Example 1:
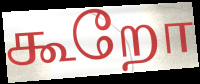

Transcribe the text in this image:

கூறோ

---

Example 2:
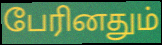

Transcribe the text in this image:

பேரினதும்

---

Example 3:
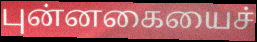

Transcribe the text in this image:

புன்னகையைச்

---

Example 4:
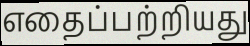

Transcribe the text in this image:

எதைப்பற்றியது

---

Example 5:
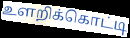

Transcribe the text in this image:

உளறிக்கொட்டி